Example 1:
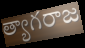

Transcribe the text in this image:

త్యాగరాజ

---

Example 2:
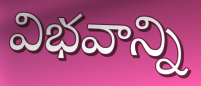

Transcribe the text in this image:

విభవాన్ని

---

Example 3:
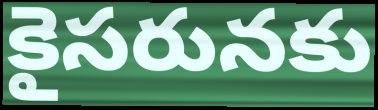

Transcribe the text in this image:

కైసరునకు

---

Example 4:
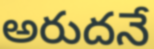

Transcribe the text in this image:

అరుదనే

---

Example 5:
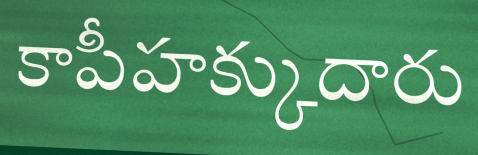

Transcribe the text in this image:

కాపీహక్కుదారు